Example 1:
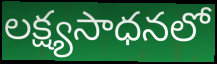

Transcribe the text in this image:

లక్ష్యసాధనలో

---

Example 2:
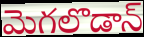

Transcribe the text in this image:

మెగలొడాన్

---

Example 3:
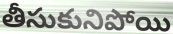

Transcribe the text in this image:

తీసుకునిపోయి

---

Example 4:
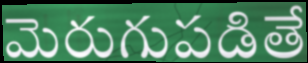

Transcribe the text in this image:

మెరుగుపడితే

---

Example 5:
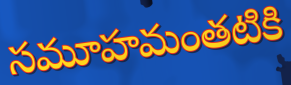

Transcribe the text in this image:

సమూహమంతటికి